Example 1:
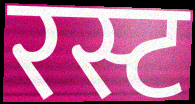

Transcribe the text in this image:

रस्ट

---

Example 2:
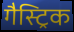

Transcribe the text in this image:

गैस्ट्रिक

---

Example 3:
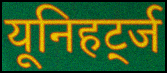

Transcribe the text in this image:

यूनिहर्ट्ज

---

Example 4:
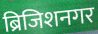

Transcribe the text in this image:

ब्रिजिशनगर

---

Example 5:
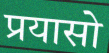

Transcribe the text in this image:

प्रयासो